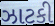
ઝાટકી